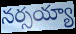
నర్సయ్యా